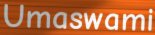
Umaswami